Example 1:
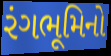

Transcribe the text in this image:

રંગભૂમિનો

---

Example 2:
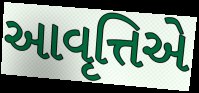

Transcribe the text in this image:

આવૃત્તિએ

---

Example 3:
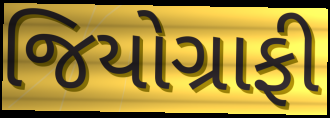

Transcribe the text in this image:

જિયોગ્રાફી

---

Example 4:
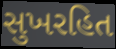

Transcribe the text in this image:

સુખરહિત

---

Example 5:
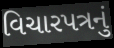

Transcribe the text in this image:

વિચારપત્રનું